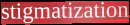
stigmatization